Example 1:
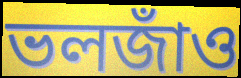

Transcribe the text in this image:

ভলজাঁও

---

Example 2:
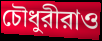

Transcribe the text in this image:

চৌধুরীরাও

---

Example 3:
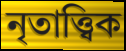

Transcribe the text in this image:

নৃতাত্ত্বিক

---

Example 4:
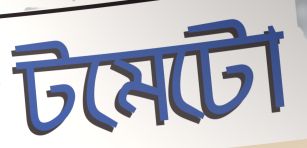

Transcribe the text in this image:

টমেটো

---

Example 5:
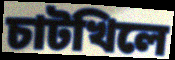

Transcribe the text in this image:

চাটখিলে